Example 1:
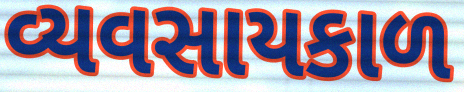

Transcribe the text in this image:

વ્યવસાયકાળ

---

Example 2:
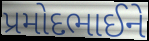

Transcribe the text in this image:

પ્રમોદભાઈને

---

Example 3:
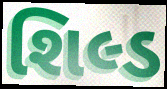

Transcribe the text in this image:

શિલ્ડ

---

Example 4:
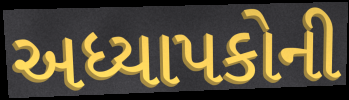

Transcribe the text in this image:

અધ્યાપકોની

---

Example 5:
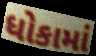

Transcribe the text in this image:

ધોકામાં